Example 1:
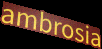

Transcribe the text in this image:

ambrosia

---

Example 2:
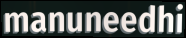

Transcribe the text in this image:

manuneedhi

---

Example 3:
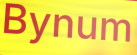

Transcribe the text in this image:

Bynum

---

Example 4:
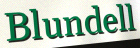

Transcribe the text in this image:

Blundell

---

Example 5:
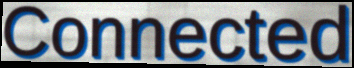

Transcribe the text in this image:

Connected